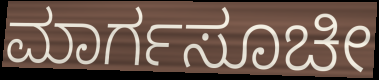
ಮಾರ್ಗಸೂಚೀ